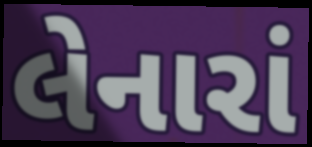
લેનારાં